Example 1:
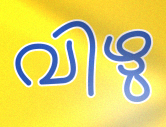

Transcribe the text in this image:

വിഴു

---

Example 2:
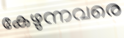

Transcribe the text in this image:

കേഴുന്നവരെ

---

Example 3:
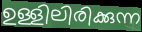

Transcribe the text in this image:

ഉള്ളിലിരിക്കുന്ന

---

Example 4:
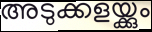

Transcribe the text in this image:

അടുക്കളയ്ക്കും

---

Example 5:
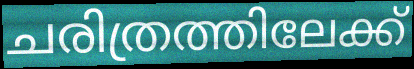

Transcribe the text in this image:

ചരിത്രത്തിലേക്ക്